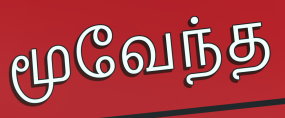
மூவேந்த